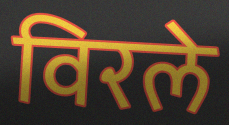
विरले